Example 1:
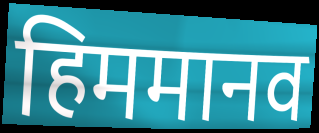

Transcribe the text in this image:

हिममानव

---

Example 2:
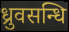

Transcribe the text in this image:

ध्रुवसन्धि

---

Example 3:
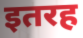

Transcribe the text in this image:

इतरह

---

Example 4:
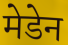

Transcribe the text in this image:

मेडेन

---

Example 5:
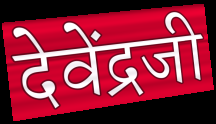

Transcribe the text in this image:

देवेंद्रजी